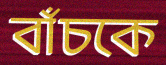
বাঁচকে